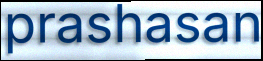
prashasan